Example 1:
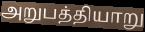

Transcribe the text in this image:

அறுபத்தியாறு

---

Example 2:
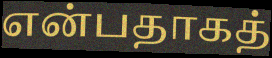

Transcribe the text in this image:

என்பதாகத்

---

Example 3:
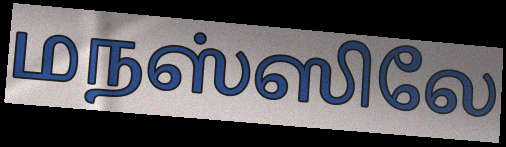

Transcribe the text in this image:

மநஸ்ஸிலே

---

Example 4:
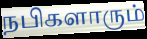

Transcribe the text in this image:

நபிகளாரும்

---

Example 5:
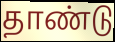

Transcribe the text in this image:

தாண்டு